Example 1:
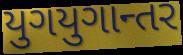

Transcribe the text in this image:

યુગયુગાન્તર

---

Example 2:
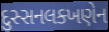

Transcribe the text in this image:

દુસ્સનલક્ખણેન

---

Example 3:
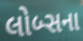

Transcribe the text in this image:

લોબ્સના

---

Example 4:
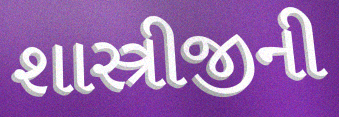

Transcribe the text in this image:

શાસ્ત્રીજીની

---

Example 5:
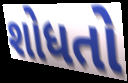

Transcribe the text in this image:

શોધતો